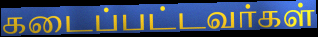
கடைப்பட்டவர்கள்